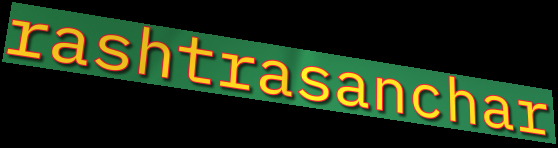
rashtrasanchar